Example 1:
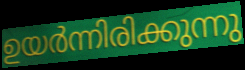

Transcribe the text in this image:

ഉയർന്നിരിക്കുന്നു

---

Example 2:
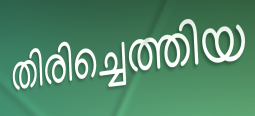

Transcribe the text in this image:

തിരിച്ചെത്തിയ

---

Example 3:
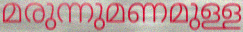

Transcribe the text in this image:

മരുന്നുമണമുള്ള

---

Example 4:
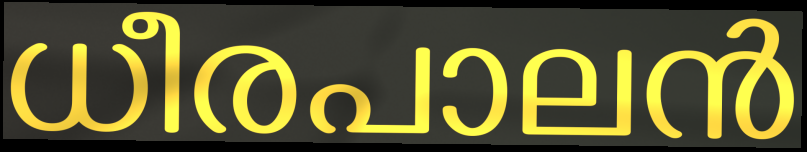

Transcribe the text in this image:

ധീരപാലൻ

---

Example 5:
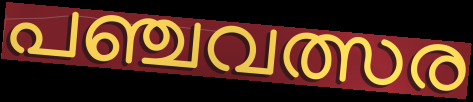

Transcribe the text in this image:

പഞ്ചവത്സര